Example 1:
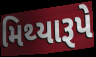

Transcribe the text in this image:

મિથ્યારૂપે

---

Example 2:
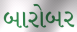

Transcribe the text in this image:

બારોબર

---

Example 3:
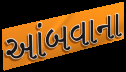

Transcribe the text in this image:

આંબવાના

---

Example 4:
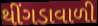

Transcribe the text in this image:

થીંગડાવાળી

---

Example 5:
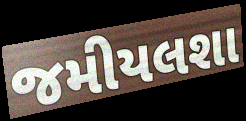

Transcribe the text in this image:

જમીયલશા